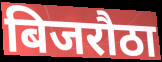
बिजरौठा